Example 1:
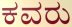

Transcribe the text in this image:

ಕವರು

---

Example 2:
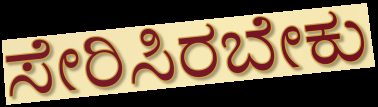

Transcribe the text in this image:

ಸೇರಿಸಿರಬೇಕು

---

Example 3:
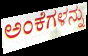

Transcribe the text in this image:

ಅಂಕೆಗಳನ್ನು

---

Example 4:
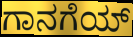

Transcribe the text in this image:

ಗಾನಗೆಯ್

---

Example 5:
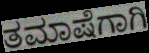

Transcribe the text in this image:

ತಮಾಷೆಗಾಗಿ